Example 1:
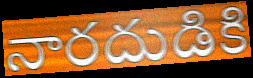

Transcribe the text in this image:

నారదుడికి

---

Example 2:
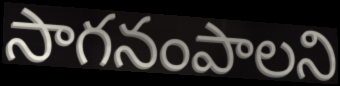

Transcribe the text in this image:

సాగనంపాలని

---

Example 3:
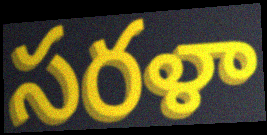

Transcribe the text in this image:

సరళా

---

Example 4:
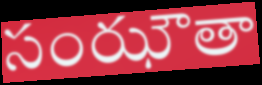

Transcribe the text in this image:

సంఝౌతా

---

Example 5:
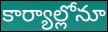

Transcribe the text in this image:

కార్యాల్లోనూ